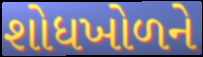
શોધખોળને